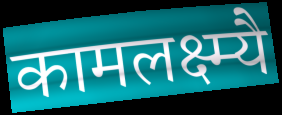
कामलक्ष्म्यै